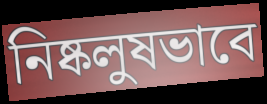
নিষ্কলুষভাবে